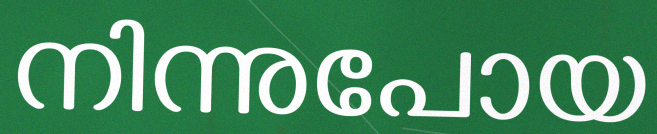
നിന്നുപോയ